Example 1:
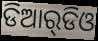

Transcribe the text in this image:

ଡିଆର୍‌ଡିଓ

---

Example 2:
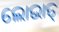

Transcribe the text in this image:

ଲୋଭାତ୍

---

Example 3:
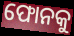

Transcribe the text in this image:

ଫୋନକୁ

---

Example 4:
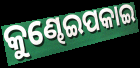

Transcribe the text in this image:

କୁଣ୍ଢେଇପକାଇ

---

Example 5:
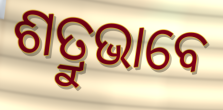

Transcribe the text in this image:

ଶତ୍ରୁଭାବେ